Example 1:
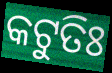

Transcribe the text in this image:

କଟୁତିଃ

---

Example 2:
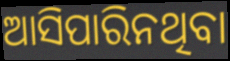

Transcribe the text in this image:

ଆସିପାରିନଥିବା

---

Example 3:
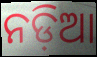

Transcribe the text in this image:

ନଡ଼ିଆ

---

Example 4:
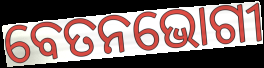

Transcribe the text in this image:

ବେତନଭୋଗୀ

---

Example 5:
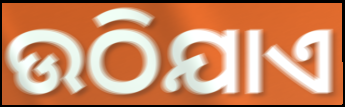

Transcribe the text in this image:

ଉଠିଯାଏ